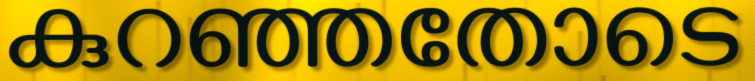
കുറഞ്ഞതോടെ